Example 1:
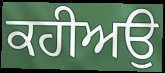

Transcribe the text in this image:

ਕਹੀਅਉ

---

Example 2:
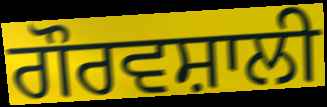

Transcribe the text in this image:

ਗੌਰਵਸ਼ਾਲੀ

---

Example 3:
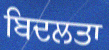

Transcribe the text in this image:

ਬਿਦਲਤਾ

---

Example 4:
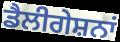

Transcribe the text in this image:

ਡੈਲੀਗੇਸ਼ਨਾਂ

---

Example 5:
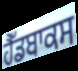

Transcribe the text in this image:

ਹੈੱਡਬਾਕਸ